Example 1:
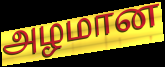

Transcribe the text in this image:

அழமான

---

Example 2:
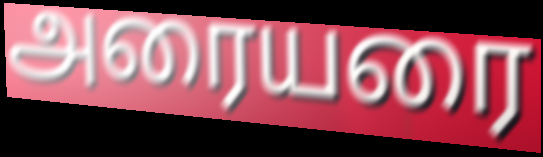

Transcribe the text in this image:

அரையரை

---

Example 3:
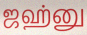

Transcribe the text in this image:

ஜஹ்னு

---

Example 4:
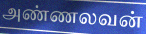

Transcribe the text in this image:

அண்ணலவன்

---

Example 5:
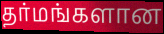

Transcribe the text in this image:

தர்மங்களான